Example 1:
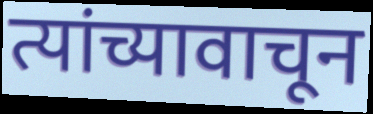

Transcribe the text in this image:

त्यांच्यावाचून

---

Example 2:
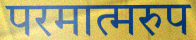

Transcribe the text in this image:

परमात्मरुप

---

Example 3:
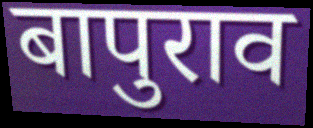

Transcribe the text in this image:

बापुराव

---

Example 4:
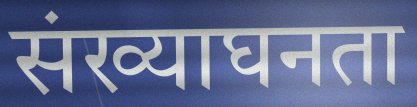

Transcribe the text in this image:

संख्याघनता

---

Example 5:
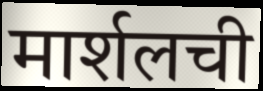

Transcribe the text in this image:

मार्शलची